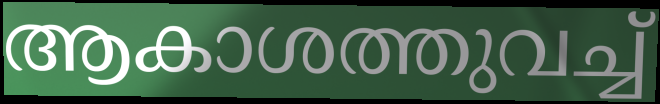
ആകാശത്തുവച്ച്